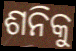
ଶନିକୁ